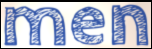
men